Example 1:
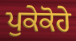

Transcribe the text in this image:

ਪੁਕੇਕੋਹੇ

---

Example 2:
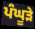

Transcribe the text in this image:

ਪੰਘੂੜੇ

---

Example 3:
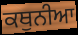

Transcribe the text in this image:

ਕਥੁਨੀਆ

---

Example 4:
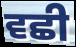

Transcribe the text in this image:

ਵਛੀ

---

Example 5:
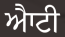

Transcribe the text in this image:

ਐਾਟੀ